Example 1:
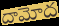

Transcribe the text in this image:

దామోద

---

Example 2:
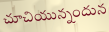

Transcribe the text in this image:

చూచియున్నందున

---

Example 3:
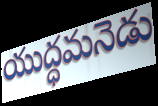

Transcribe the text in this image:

యుద్ధమనెడు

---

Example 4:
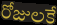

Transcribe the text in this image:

రోజులకే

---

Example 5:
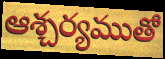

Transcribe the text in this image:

ఆశ్చర్యముతో